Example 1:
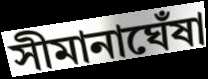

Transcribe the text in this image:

সীমানাঘেঁষা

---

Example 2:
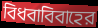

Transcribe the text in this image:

বিধবাবিবাহের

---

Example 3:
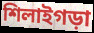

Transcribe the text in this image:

শিলাইগড়া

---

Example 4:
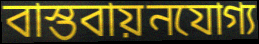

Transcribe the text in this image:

বাস্তবায়নযোগ্য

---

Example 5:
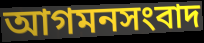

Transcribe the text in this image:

আগমনসংবাদ